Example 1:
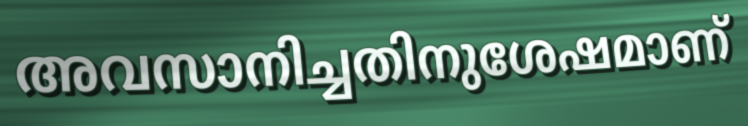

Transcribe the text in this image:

അവസാനിച്ചതിനുശേഷമാണ്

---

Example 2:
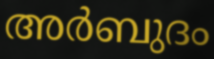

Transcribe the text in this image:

അർബുദം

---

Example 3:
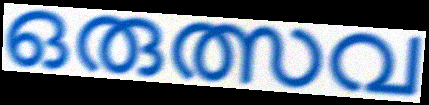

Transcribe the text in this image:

ഒരുത്സവ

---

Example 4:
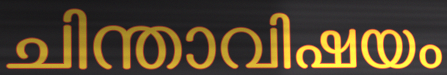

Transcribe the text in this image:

ചിന്താവിഷയം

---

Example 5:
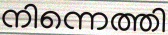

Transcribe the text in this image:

നിന്നെത്തി